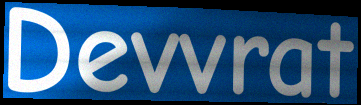
Devvrat